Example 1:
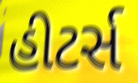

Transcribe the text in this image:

હીટર્સ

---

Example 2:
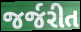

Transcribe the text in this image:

જર્જરીત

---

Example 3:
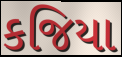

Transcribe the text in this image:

કજિયા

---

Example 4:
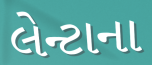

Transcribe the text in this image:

લેન્ટાના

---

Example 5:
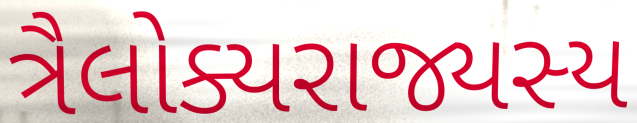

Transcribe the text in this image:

ત્રૈલોક્યરાજ્યસ્ય